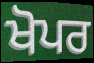
ਖੋਪਰ